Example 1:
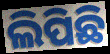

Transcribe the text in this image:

ଲିପିଛି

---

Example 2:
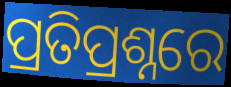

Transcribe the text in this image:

ପ୍ରତିପ୍ରଶ୍ନରେ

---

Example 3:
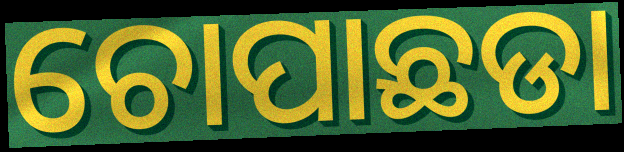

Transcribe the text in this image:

ଚୋପାଛଡା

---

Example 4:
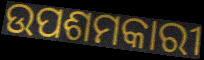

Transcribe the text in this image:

ଉପଶମକାରୀ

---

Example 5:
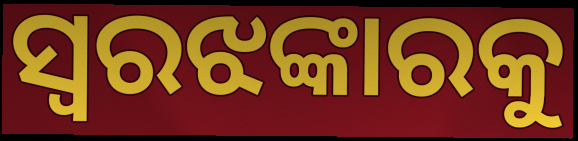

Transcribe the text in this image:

ସ୍ୱରଝଙ୍କାରକୁ